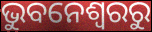
ଭୁବନେଶ୍ୱରରୁ